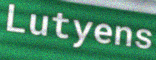
Lutyens